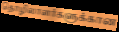
தொழிலாளர்களுக்கான